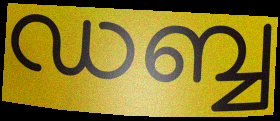
ഡബ്ബ